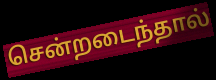
சென்றடைந்தால்